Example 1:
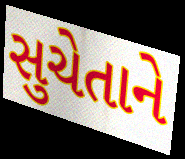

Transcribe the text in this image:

સુચેતાને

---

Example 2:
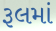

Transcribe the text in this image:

રૂલમાં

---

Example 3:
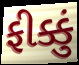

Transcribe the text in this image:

ફીક્કું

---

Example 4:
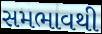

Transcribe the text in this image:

સમભાવથી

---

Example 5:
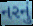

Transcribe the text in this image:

નરનું